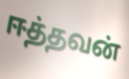
ஈத்தவன்